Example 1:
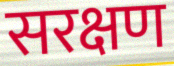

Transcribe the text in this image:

सरक्षण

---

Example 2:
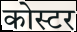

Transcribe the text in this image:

कोस्टर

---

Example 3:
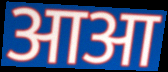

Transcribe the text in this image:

आआ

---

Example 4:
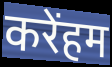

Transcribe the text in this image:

करेंहम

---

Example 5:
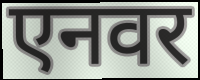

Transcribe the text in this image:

एनवर